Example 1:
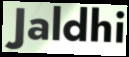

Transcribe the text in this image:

Jaldhi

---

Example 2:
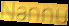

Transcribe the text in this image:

Nannu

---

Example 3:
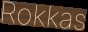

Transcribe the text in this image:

Rokkas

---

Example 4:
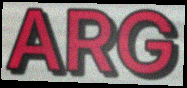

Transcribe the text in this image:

ARG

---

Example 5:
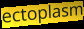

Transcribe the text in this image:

ectoplasm